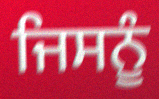
ਜਿਸਨੂੰ